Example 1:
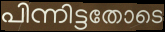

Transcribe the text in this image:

പിന്നിട്ടതോടെ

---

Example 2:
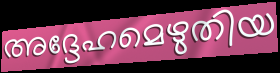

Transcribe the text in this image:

അദ്ദേഹമെഴുതിയ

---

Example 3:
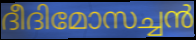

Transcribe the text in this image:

ദീദിമോസച്ചൻ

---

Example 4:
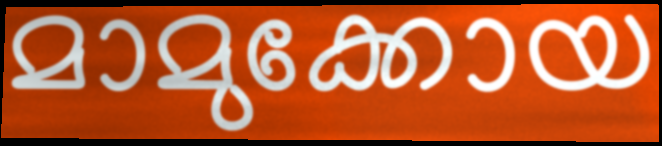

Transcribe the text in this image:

മാമുക്കോയ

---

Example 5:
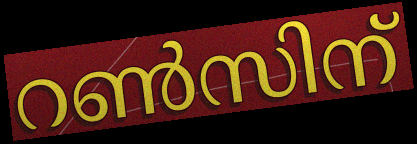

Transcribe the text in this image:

റൺസിന്